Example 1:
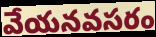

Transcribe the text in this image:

వేయనవసరం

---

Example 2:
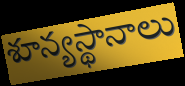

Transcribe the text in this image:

శూన్యస్థానాలు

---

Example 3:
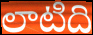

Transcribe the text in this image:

లాటిది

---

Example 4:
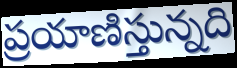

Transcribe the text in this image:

ప్రయాణిస్తున్నది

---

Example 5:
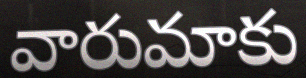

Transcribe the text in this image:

వారుమాకు